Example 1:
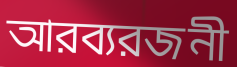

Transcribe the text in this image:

আরব্যরজনী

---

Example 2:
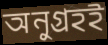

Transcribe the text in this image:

অনুগ্রহই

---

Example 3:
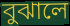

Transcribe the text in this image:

বুঝালে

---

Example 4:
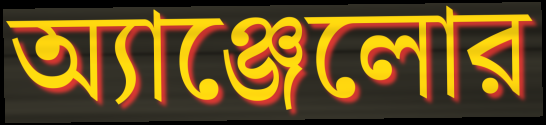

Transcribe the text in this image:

অ্যাঞ্জেলোর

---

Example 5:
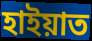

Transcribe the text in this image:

হাইয়াত